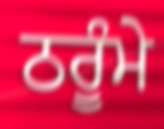
ਠਰੂੰਮੇ